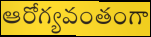
ఆరోగ్యవంతంగా